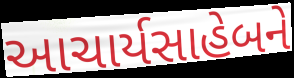
આચાર્યસાહેબને